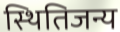
स्थितिजन्य